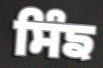
ਸਿੰਙ